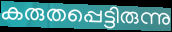
കരുതപ്പെട്ടിരുന്നു